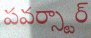
పవర్స్టార్